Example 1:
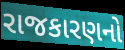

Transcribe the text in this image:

રાજકારણનો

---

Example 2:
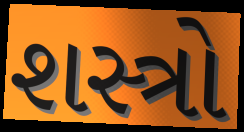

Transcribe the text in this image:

શસ્‍ત્રો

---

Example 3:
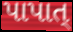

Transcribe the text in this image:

પાપાત્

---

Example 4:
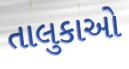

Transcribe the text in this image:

તાલુકાઓ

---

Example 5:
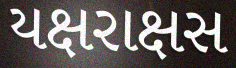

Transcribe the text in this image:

યક્ષરાક્ષસ